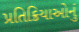
પ્રતિક્રિયાઓનું